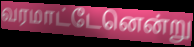
வரமாட்டேனென்று